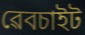
ৱেবচাইট